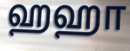
ஹஹா